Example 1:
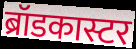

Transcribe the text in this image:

ब्रॉडकास्टर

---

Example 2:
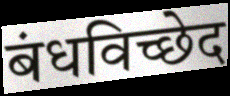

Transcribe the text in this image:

बंधविच्छेद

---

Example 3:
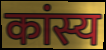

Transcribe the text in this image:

कांस्‍य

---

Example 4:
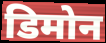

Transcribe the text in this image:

डिमोन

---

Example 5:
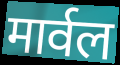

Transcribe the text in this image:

मार्वल